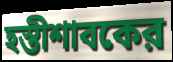
হস্তীশাবকের